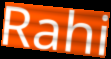
Rahi